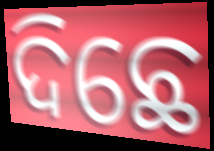
ଦିଛେ